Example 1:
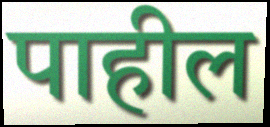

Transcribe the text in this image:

पाहील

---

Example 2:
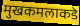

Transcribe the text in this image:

मुखकमलाकडे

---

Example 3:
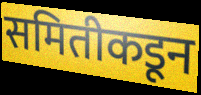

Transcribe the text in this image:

समितीकडून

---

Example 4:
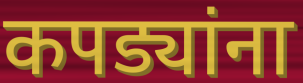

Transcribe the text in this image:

कपड्यांना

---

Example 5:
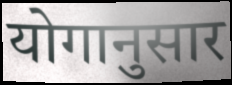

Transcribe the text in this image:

योगानुसार